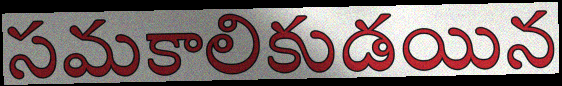
సమకాలికుడయిన